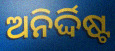
ଅନିର୍ଦ୍ଦିଷ୍ଟ